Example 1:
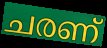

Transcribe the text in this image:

ചരണ്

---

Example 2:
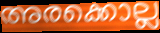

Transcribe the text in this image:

അരക്കൊല്ല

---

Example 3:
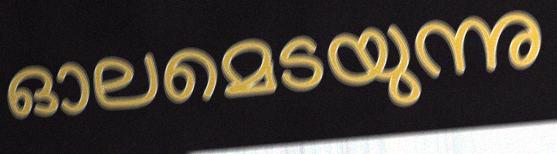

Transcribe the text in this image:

ഓലമെടയുന്നു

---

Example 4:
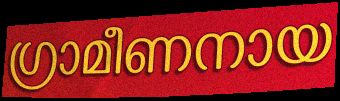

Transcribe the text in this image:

ഗ്രാമീണനായ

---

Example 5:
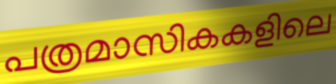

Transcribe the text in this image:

പത്രമാസികകളിലെ